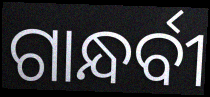
ଗାନ୍ଧର୍ବୀ